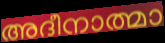
അദീനാത്മാ